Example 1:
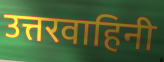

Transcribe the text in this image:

उत्तरवाहिनी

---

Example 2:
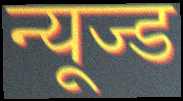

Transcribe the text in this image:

न्यूज्ड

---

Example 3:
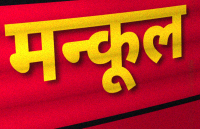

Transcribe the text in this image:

मन्कूल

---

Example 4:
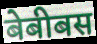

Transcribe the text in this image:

बेबीबस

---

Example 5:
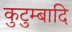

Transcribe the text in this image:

कुटुम्बादि